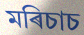
মৰিচাচ